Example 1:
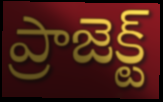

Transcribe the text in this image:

ప్రాజెక్ట్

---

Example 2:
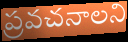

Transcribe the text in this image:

ప్రవచనాలని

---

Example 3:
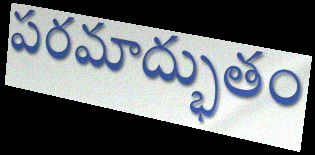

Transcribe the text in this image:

పరమాద్భుతం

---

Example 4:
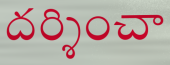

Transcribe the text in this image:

దర్శించా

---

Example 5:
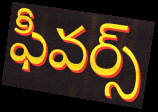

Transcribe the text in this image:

ఫీవర్స్